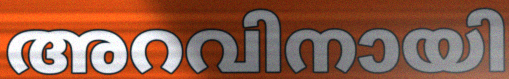
അറവിനായി